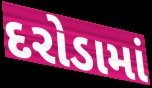
દરોડામાં